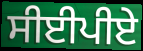
ਸੀਈਪੀਏ